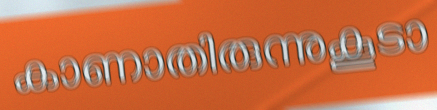
കാണാതിരുന്നുകൂടാ